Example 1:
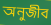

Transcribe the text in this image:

অনুজীব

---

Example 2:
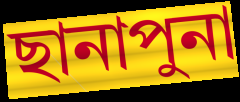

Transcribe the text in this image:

ছানাপুনা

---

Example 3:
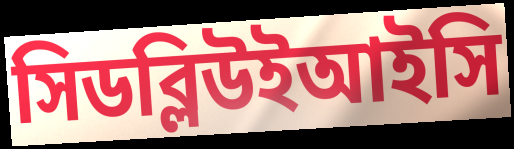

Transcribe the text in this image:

সিডব্লিউইআইসি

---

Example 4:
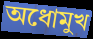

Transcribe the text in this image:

অধোমুখ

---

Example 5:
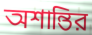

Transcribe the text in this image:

অশান্তির